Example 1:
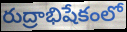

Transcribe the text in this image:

రుద్రాభిషేకంలో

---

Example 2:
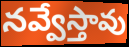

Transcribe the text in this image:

నవ్వేస్తావు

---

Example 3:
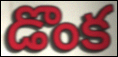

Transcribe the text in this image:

డొంక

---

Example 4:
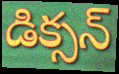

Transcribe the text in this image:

డిక్సన్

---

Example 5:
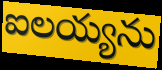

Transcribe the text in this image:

ఐలయ్యను